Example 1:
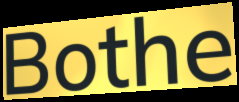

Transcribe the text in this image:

Bothe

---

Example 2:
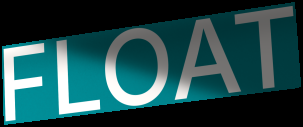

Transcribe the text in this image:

FLOAT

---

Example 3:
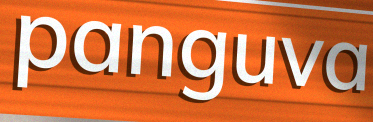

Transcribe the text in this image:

panguva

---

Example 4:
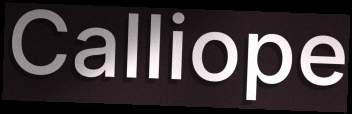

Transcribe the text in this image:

Calliope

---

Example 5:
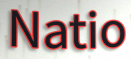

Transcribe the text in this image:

Natio